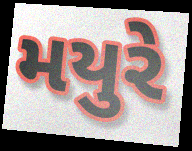
મયુરે